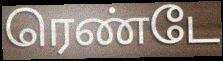
ரெண்டே